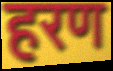
हरण